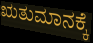
ಋತುಮಾನಕ್ಕೆ